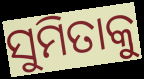
ସୁମିତାକୁ